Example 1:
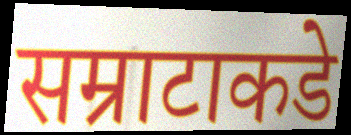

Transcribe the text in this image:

सम्राटाकडे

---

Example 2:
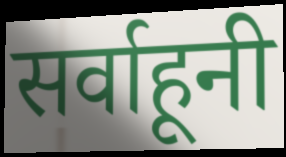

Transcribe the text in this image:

सर्वाहूनी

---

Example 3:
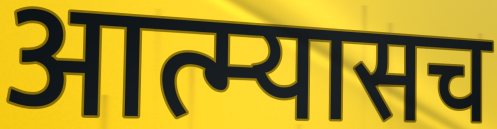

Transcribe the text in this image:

आत्म्यासच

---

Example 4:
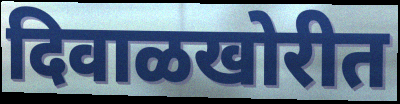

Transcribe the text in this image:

दिवाळखोरीत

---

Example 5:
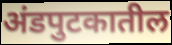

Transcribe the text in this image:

अंडपुटकातील